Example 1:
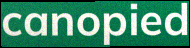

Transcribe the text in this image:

canopied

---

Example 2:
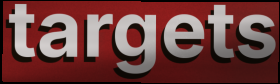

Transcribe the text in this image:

targets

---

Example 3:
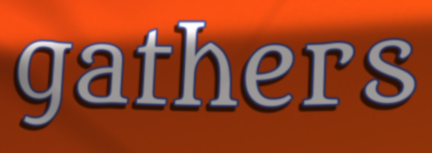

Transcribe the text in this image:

gathers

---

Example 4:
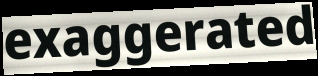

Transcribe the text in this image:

exaggerated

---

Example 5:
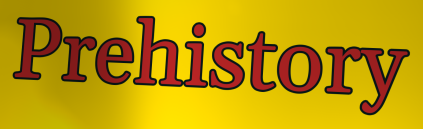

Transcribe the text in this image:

Prehistory